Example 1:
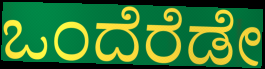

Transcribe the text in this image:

ಒಂದೆರೆಡೇ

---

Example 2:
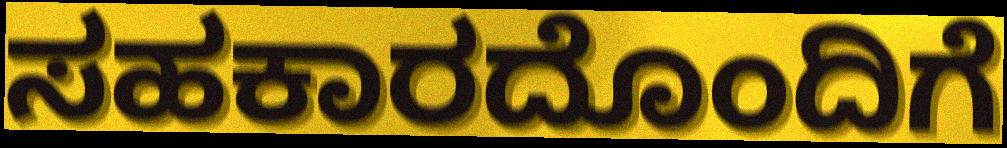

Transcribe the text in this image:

ಸಹಕಾರದೊಂದಿಗೆ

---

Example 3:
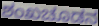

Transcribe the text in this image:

ಶಂಖಚೂಡನ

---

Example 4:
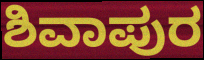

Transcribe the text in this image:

ಶಿವಾಪುರ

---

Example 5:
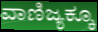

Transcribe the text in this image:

ವಾಣಿಜ್ಯಕ್ಕೂ